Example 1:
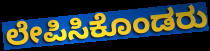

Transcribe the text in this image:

ಲೇಪಿಸಿಕೊಂಡರು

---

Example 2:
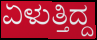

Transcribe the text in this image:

ಏಳುತ್ತಿದ್ದ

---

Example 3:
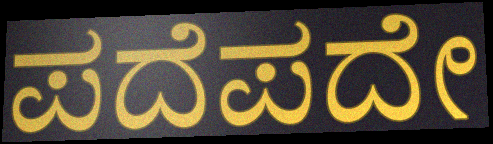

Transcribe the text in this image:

ಪದೆಪದೇ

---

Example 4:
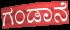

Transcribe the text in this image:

ಗಂಡಾನೆ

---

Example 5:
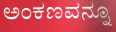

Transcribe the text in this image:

ಅಂಕಣವನ್ನೂ